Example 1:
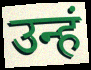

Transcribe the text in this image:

उन्हं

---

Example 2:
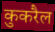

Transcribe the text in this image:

कुकरैल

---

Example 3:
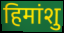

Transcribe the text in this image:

हिमांशु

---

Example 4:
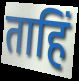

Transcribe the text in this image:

ताहिं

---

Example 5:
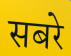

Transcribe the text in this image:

सबरे